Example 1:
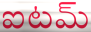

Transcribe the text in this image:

ఐటమ్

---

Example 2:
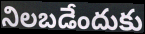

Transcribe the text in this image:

నిలబడేందుకు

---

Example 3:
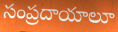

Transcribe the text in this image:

సంప్రదాయాలూ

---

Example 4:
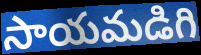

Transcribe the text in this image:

సాయమడిగి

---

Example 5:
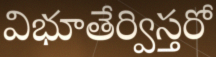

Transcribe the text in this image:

విభూతేర్విస్తరో